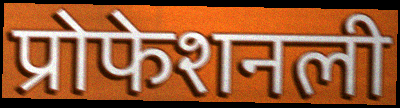
प्रोफेशनली